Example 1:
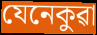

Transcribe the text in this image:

যেনেকুৱা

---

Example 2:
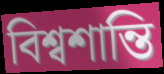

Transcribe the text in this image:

বিশ্বশান্তি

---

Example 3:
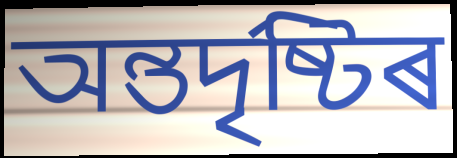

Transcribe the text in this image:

অন্তৰ্দৃষ্টিৰ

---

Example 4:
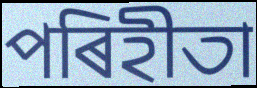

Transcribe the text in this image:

পৰিহীতা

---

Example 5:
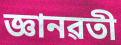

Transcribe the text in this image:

জ্ঞানৱতী